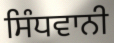
ਸਿੰਧਵਾਨੀ